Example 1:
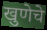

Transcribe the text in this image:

खुणेचे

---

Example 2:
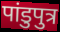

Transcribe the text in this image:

पांडुपुत्र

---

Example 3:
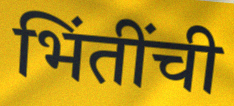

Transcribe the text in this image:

भिंतींची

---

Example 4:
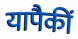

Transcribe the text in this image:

यापैकीं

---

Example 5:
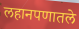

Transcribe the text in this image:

लहानपणातले